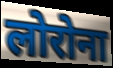
लोरोना